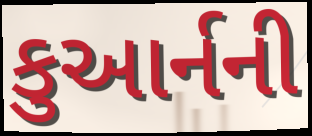
કુઆર્નની